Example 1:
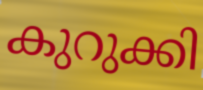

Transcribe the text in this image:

കുറുക്കി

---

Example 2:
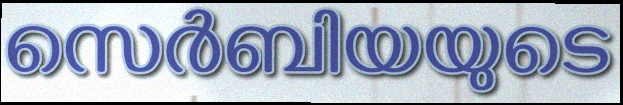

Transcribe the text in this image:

സെർബിയയുടെ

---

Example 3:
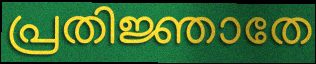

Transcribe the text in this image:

പ്രതിജ്ഞാതേ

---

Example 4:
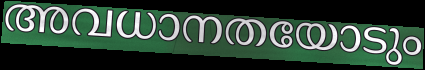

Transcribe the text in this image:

അവധാനതയോടും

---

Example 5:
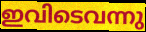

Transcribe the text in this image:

ഇവിടെവന്നു